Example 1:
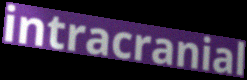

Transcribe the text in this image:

intracranial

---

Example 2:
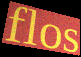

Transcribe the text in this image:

flos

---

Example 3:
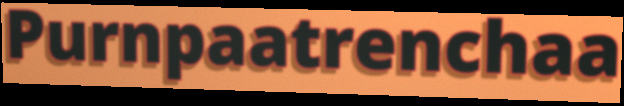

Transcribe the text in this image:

Purnpaatrenchaa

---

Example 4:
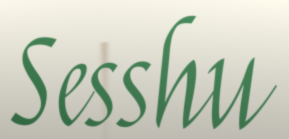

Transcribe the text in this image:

Sesshu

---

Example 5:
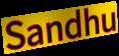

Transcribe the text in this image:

Sandhu